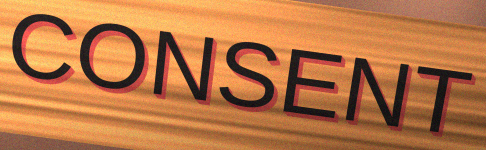
CONSENT